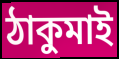
ঠাকুমাই